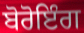
ਬੋਰੋਇੰਗ